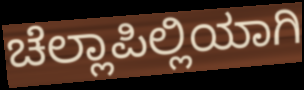
ಚೆಲ್ಲಾಪಿಲ್ಲಿಯಾಗಿ